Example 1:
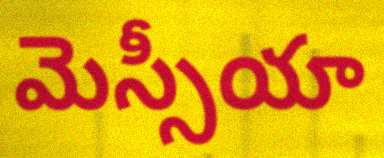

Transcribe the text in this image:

మెస్సీయా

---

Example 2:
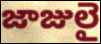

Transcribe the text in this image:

జాజులై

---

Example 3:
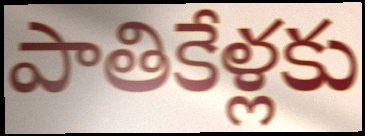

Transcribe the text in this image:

పాతికేళ్లకు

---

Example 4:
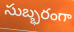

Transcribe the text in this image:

సుబ్భరంగా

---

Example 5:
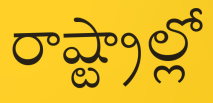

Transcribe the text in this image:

రాష్ట్రాల్లో